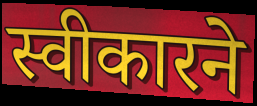
स्वीकारने